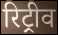
रिट्रीव